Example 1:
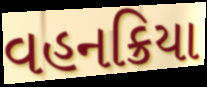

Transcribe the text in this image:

વહનક્રિયા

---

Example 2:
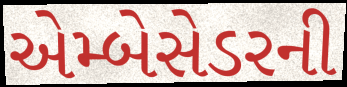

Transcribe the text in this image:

એમ્બેસેડરની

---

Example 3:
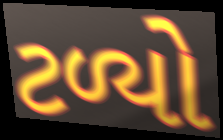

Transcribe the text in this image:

ટળ્યો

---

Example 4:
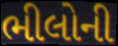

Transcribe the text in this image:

ભીલોની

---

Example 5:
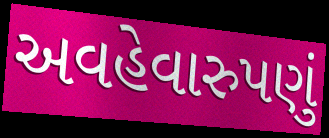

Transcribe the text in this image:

અવહેવારુપણું